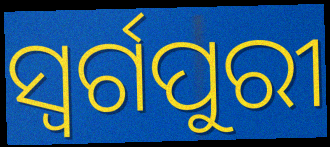
ସ୍ଵର୍ଗପୁରୀ